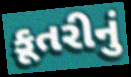
કૂતરીનું